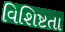
વિશિષ્ટતા